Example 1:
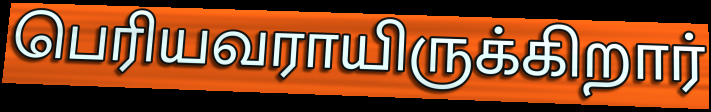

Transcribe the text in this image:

பெரியவராயிருக்கிறார்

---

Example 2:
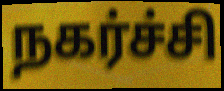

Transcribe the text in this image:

நகர்ச்சி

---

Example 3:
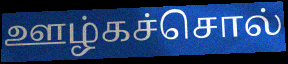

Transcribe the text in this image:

ஊழ்கச்சொல்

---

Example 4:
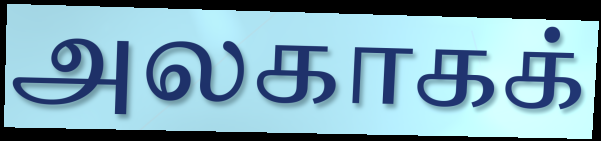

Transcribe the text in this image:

அலகாகக்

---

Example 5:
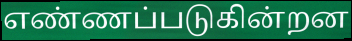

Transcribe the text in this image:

எண்ணப்படுகின்றன